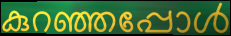
കുറഞ്ഞപ്പോൾ